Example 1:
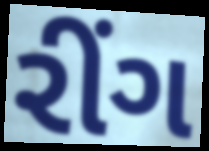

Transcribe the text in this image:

રીંગ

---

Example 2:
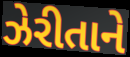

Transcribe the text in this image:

ઝેરીતાને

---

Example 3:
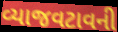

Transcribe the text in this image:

વ્યાજવટાવની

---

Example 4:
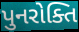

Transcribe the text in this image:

પુનરોક્તિ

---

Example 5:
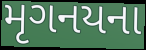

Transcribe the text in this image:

મૃગનયના